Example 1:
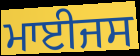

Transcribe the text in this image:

ਮਾਈਜਸ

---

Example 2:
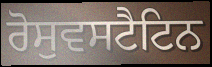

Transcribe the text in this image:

ਰੋਸੁਵਸਟੈਟਿਨ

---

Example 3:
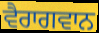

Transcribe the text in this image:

ਵੈਰਾਗਵਾਨ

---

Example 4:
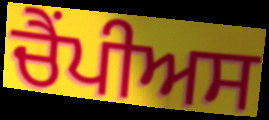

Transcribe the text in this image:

ਚੈਂਪੀਅਸ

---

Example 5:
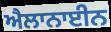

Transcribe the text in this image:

ਐਲਾਨਾਈਨ